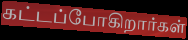
கட்டப்போகிறார்கள்